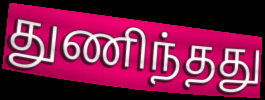
துணிந்தது